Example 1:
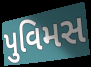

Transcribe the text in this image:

પુવિમસ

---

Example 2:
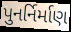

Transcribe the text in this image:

પુનર્નિર્માણ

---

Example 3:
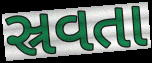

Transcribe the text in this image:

સ્રવતા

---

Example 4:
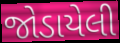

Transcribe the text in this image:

જોડાયેલી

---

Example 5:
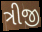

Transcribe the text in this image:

ત્રીજી